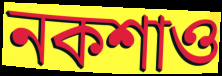
নকশাও